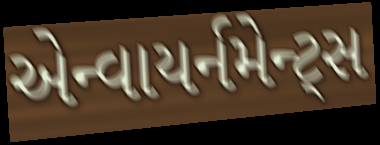
એન્વાયર્નમેન્ટ્સ